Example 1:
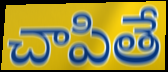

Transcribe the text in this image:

చాపితే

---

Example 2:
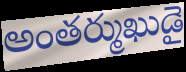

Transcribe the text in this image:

అంతర్ముఖుడై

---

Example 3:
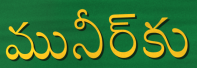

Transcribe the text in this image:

మునీర్‌కు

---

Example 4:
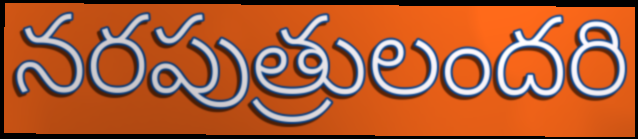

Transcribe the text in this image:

నరపుత్రులందరి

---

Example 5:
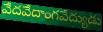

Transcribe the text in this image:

వేదవేదాంగవేద్యుడు